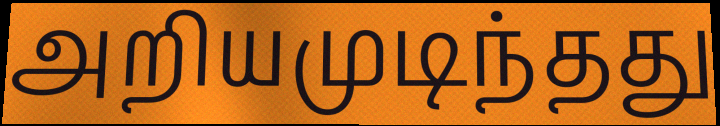
அறியமுடிந்தது